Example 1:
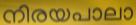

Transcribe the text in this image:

നിരയപാലാ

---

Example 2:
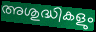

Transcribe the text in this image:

അശുദ്ധികളും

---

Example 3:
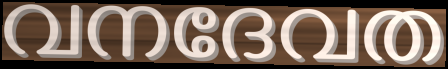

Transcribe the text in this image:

വനദേവത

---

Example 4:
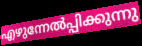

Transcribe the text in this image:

എഴുന്നേൽപ്പിക്കുന്നു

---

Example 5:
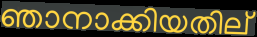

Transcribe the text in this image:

ഞാനാക്കിയതില്